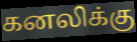
கனலிக்கு